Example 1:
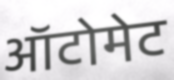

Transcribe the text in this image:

ऑटोमेट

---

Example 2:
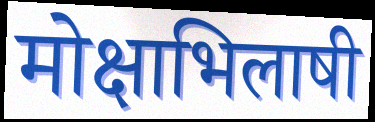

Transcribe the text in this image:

मोक्षाभिलाषी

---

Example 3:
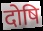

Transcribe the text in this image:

दोषि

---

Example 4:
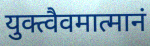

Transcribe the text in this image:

युक्त्वैवमात्मानं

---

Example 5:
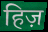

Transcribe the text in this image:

हिज़